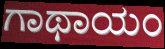
ಗಾಥಾಯಂ